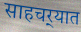
साहचर्यात